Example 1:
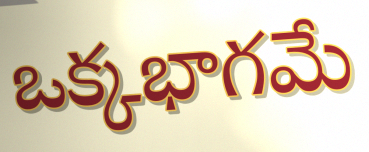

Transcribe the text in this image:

ఒక్కభాగమే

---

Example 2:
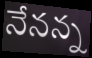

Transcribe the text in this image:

నేనన్న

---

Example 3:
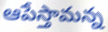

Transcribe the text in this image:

ఆపేస్తామన్న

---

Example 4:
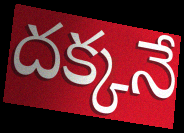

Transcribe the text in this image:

దక్కనే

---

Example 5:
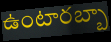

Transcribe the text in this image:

ఉంటారబ్బా